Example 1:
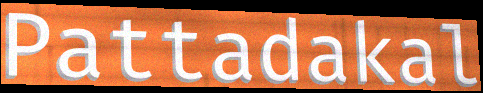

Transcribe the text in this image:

Pattadakal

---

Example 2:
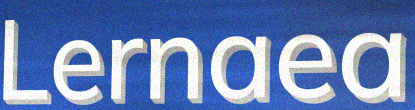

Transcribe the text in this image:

Lernaea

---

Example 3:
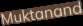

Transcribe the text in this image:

Muktanand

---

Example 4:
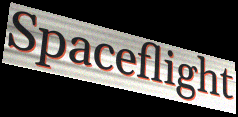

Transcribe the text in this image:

Spaceflight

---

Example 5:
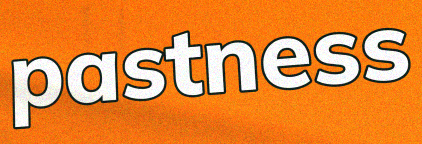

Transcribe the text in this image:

pastness